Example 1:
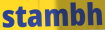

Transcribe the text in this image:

stambh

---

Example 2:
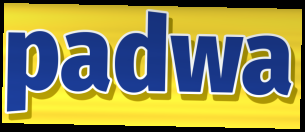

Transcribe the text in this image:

padwa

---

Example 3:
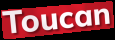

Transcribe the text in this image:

Toucan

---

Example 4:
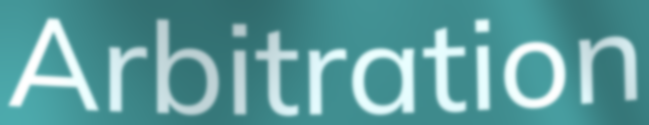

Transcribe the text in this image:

Arbitration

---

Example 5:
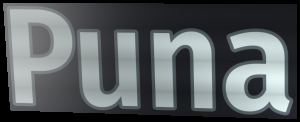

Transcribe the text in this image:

Puna